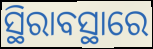
ସ୍ଥିରାବସ୍ଥାରେ